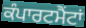
ਕੰਪਾਰਟਮੈਂਟਾਂ